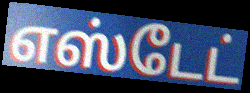
எஸ்டேட்